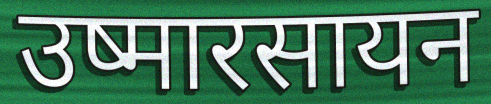
उष्मारसायन